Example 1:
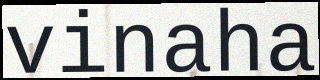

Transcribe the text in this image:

vinaha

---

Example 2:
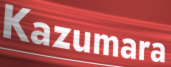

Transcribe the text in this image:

Kazumara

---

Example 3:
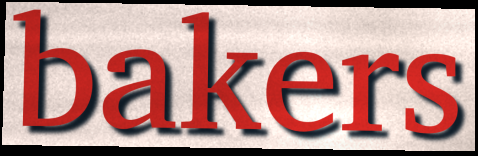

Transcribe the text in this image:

bakers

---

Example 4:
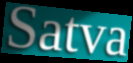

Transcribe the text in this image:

Satva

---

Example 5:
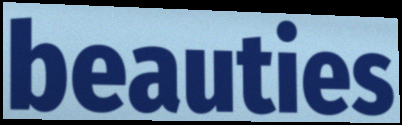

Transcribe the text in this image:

beauties